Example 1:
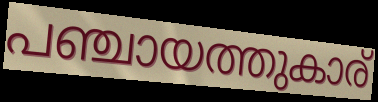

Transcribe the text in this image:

പഞ്ചായത്തുകാര്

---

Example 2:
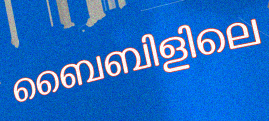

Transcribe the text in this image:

ബൈബിളിലെ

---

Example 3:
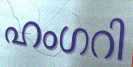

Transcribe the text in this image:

ഹംഗറി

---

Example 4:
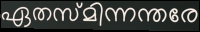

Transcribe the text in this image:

ഏതസ്മിന്നന്തരേ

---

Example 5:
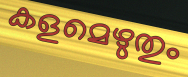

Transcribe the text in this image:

കളമെഴുതും